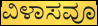
ವಿಳಾಸವೂ